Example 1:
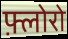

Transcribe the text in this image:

फ़्लोरो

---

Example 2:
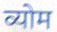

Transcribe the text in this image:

व्योम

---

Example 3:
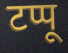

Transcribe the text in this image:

टप्पू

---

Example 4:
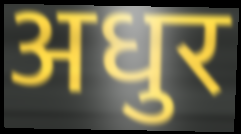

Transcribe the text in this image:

अधुर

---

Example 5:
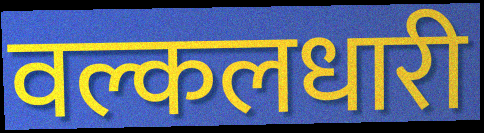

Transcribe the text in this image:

वल्कलधारी